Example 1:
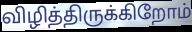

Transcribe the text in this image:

விழித்திருக்கிறோம்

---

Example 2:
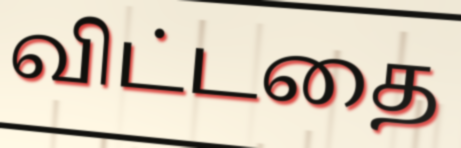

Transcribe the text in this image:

விட்டதை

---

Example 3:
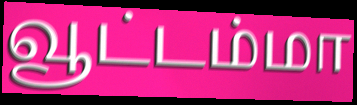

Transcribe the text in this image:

வூட்டம்மா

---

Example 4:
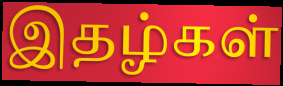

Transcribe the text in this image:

இதழ்கள்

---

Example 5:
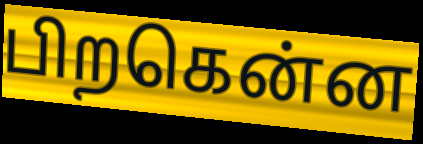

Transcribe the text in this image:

பிறகென்ன